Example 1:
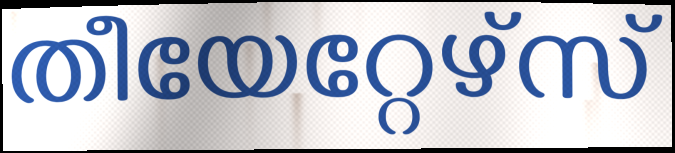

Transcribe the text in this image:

തീയേറ്റേഴ്സ്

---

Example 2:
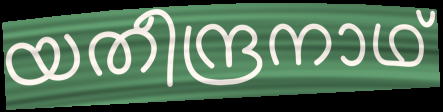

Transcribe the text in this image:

യതീന്ദ്രനാഥ്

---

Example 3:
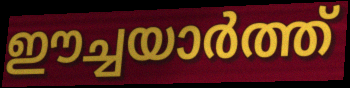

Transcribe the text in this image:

ഈച്ചയാർത്ത്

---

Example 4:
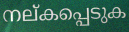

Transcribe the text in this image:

നല്കപ്പെടുക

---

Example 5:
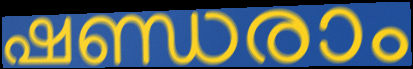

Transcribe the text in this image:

ഷണ്ഡരാം